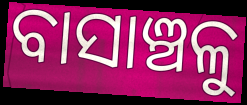
ବାସାଞ୍ଚଳୁ